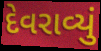
દેવરાવ્યું